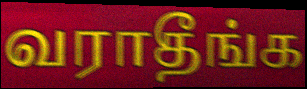
வராதீங்க